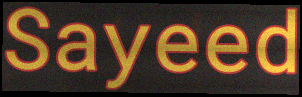
Sayeed